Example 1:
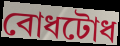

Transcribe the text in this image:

বোধটোধ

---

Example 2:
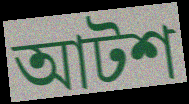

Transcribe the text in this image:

আটশ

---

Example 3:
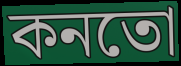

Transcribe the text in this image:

কনতো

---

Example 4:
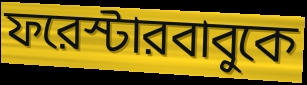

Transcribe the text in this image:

ফরেস্টারবাবুকে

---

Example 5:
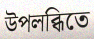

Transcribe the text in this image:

উপলব্ধিতে